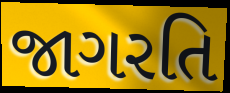
જાગરતિ